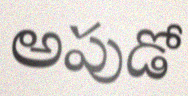
అపుడో